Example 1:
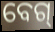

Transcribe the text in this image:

ବେଗ୍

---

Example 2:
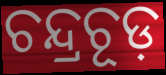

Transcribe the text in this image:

ଚନ୍ଦ୍ରଚୂଡ଼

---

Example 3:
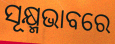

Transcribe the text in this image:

ସୂକ୍ଷ୍ମଭାବରେ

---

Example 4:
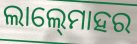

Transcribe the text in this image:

ଲାଲ୍‍ମୋହର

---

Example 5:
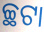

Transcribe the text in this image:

ଚ୍ଛଟା